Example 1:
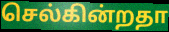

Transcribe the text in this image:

செல்கின்றதா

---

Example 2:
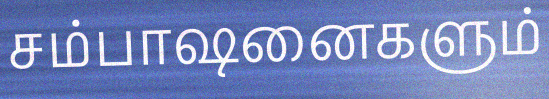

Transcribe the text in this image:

சம்பாஷனைகளும்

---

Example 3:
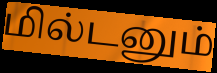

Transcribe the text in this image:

மில்டனும்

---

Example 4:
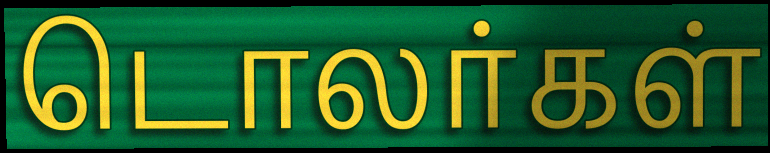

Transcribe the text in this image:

டொலர்கள்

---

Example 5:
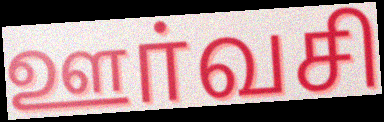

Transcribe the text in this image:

ஊர்வசி